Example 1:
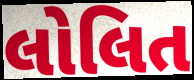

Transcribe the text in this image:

લોલિત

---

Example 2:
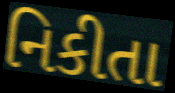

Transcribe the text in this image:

નિકીતા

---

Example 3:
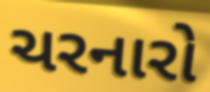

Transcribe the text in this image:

ચરનારો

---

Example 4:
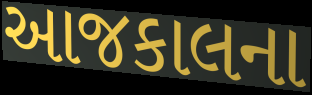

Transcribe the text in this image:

આજકાલના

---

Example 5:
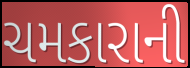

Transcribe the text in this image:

ચમકારાની